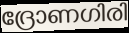
ദ്രോണഗിരി